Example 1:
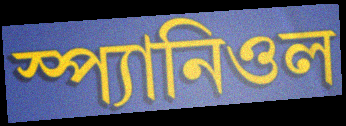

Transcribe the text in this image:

স্প্যানিওল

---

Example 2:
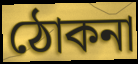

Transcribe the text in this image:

ঠোকনা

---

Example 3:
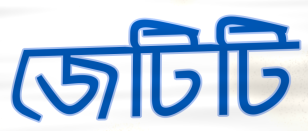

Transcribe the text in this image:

জেটিটি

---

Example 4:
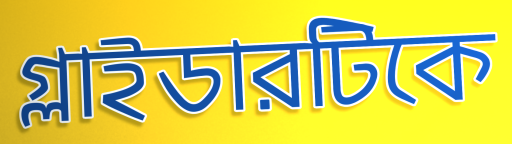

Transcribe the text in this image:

গ্লাইডারটিকে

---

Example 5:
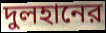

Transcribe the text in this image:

দুলহানের